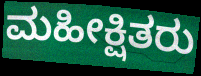
ಮಹೀಕ್ಷಿತರು